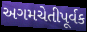
અગમચેતીપૂર્વક